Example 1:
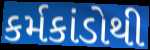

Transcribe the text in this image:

કર્મકાંડોથી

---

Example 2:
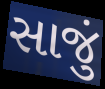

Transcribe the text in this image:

સાજું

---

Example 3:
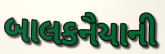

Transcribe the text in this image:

બાલકનૈયાની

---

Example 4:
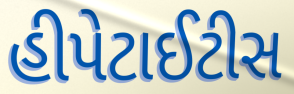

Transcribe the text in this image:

હીપેટાઈટીસ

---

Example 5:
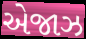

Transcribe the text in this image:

એજાઝ